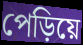
পেড়িয়ে